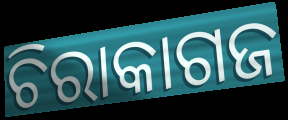
ଚିରାକାଗଜ